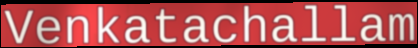
Venkatachallam